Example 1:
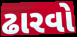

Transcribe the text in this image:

ઢારવો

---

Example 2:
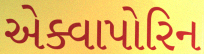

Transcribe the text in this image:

એક્વાપોરિન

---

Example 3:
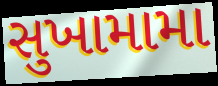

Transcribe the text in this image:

સુખામામા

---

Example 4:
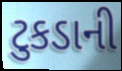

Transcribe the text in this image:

ટુકડાની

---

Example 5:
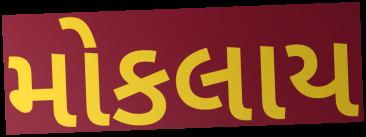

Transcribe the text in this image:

મોકલાય